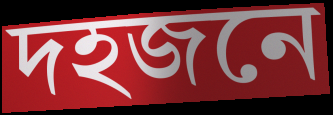
দহজনে